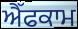
ਐੱਫਕਾਮ